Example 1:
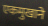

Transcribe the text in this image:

एकमुखाने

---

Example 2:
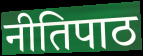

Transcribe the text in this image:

नीतिपाठ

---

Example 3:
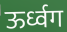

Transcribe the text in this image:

ऊर्ध्वग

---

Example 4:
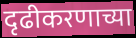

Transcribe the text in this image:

दृढीकरणाच्या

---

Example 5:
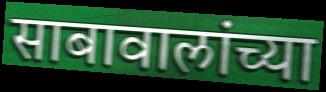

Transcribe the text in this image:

साबावालांच्या